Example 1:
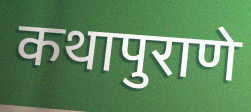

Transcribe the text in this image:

कथापुराणे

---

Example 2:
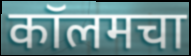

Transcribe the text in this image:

कॉलमचा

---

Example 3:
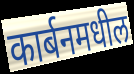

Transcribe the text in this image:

कार्बनमधील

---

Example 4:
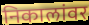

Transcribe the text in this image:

निकालांवर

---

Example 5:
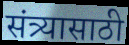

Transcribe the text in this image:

संत्र्यासाठी